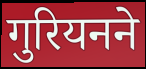
गुरियनने